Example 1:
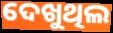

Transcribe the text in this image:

ଦେଖୁଥିଲ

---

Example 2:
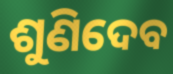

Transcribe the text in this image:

ଶୁଣିଦେବ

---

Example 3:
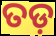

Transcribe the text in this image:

ତଡ଼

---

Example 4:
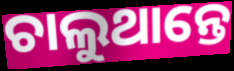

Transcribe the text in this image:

ଚାଲୁଥାନ୍ତେ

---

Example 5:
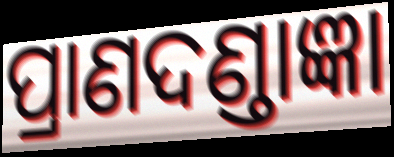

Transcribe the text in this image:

ପ୍ରାଣଦଣ୍ଡାଜ୍ଞା